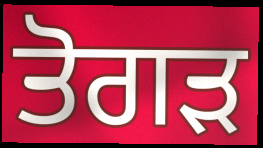
ਤੋਗੜ